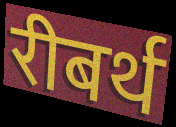
रीबर्थ